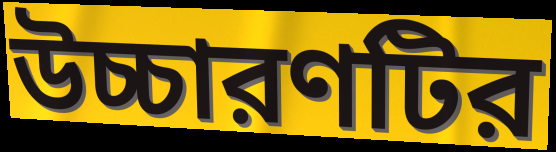
উচ্চারণটির